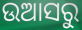
ଉଆସରୁ